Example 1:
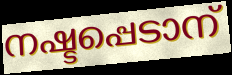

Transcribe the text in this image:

നഷ്ടപ്പെടാന്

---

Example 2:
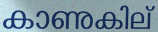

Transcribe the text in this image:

കാണുകില്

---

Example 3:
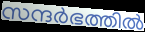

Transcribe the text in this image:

സന്ദർഭത്തിൽ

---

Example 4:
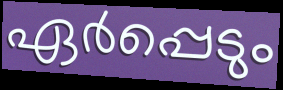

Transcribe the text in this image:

ഏർപ്പെടും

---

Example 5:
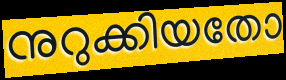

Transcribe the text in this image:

നുറുക്കിയതോ